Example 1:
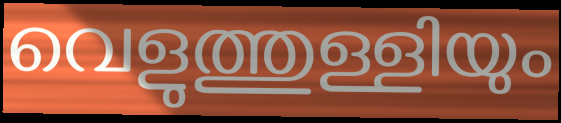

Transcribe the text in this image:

വെളുത്തുള്ളിയും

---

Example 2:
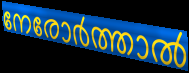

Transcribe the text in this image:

നേരോർത്താൽ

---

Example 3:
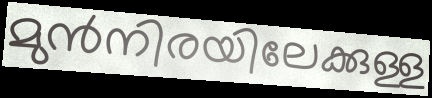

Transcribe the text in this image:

മുൻനിരയിലേക്കുള്ള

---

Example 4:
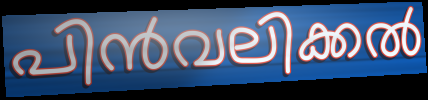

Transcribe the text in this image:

പിൻവലിക്കൽ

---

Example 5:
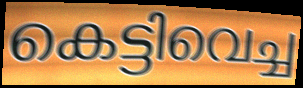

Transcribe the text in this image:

കെട്ടിവെച്ച